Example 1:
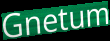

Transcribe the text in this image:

Gnetum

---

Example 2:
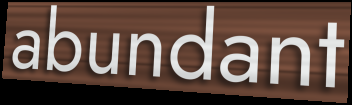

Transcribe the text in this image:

abundant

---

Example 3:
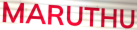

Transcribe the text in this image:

MARUTHU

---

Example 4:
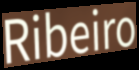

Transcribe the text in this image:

Ribeiro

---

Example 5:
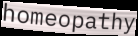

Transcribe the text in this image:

homeopathy